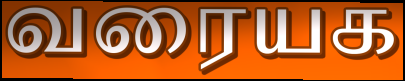
வரையக